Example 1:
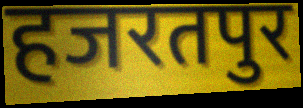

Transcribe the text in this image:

हजरतपुर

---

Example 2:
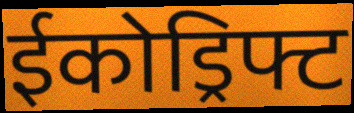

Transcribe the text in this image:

ईकोड्रिफ्ट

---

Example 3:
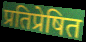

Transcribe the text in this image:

प्रतिप्रेषित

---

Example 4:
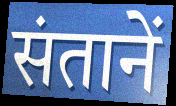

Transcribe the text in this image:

संतानें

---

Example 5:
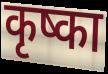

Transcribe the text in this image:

कृष्का